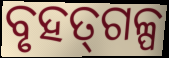
ବୃହତ୍‌ଗଳ୍ପ